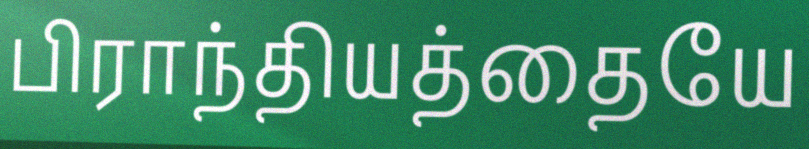
பிராந்தியத்தையே